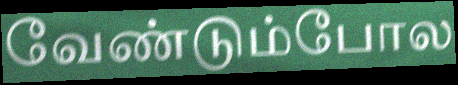
வேண்டும்போல